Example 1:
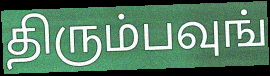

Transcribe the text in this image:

திரும்பவுங்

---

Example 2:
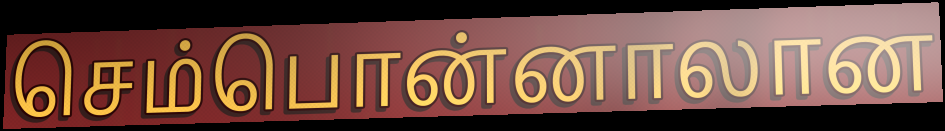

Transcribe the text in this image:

செம்பொன்னாலான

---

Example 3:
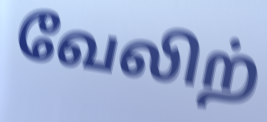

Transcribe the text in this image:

வேலிற்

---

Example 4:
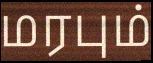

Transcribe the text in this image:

மரபும்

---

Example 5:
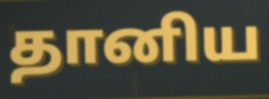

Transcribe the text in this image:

தானிய